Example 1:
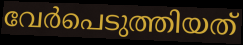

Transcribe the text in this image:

വേർപെടുത്തിയത്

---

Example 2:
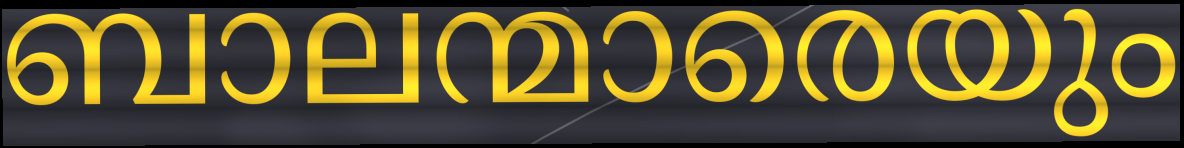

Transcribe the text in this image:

ബാലന്മാരെയും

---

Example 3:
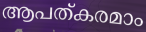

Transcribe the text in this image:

ആപത്കരമാം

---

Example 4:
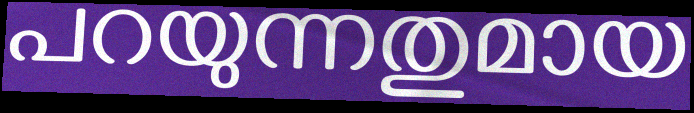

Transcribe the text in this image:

പറയുന്നതുമായ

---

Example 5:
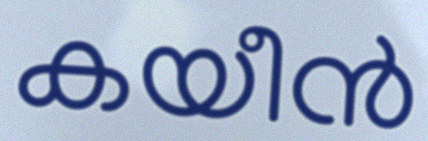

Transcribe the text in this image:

കയീൻ